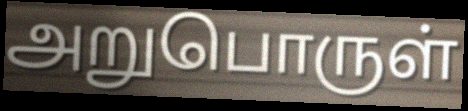
அறுபொருள்